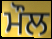
ਮੌਲ